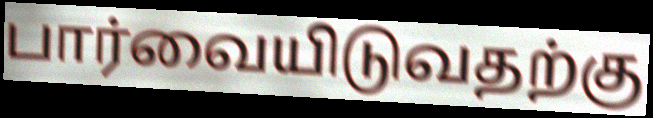
பார்வையிடுவதற்கு